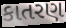
કાતરણ